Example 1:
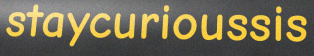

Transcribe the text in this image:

staycurioussis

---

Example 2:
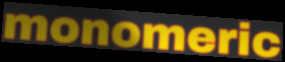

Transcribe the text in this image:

monomeric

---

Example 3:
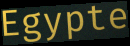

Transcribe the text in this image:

Egypte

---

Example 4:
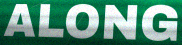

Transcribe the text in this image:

ALONG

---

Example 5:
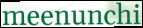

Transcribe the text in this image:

meenunchi